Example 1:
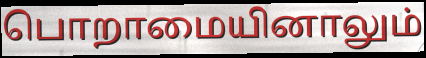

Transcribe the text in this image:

பொறாமையினாலும்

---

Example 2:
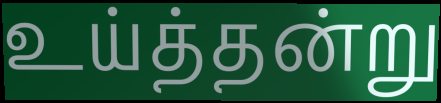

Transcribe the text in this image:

உய்த்தன்று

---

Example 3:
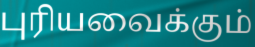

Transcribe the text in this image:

புரியவைக்கும்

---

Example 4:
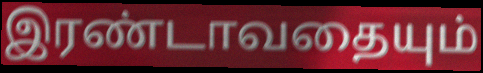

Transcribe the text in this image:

இரண்டாவதையும்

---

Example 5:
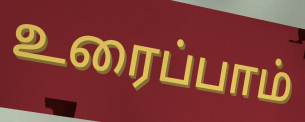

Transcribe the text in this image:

உரைப்பாம்